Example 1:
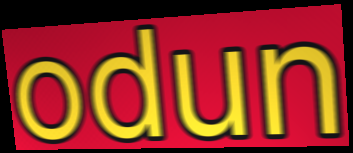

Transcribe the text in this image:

odun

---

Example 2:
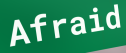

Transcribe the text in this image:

Afraid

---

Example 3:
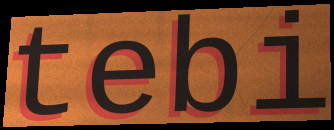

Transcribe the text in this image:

tebi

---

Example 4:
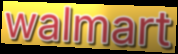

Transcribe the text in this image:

walmart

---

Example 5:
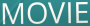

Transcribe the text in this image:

MOVIE